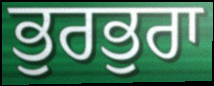
ਭੁਰਭੁਰਾ